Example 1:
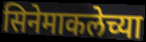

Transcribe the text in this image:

सिनेमाकलेच्या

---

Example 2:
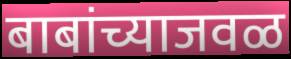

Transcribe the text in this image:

बाबांच्याजवळ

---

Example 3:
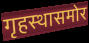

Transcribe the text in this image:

गृहस्थासमोर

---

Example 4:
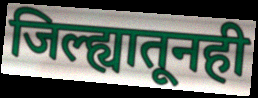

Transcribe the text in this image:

जिल्ह्यातूनही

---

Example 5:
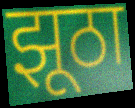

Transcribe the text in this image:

झूठा